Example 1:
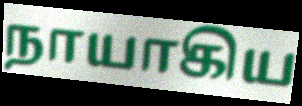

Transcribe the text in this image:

நாயாகிய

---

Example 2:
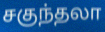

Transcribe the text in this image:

சகுந்தலா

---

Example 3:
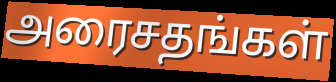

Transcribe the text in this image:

அரைசதங்கள்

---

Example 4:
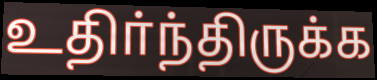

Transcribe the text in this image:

உதிர்ந்திருக்க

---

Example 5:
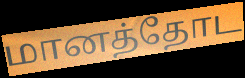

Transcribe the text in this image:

மானத்தோட